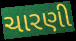
ચારણી